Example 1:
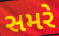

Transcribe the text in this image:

સમરે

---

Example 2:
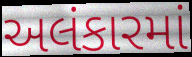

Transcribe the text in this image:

અલંકારમાં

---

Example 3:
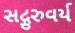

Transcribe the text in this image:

સદ્ગુરુવર્ય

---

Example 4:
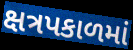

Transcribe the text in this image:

ક્ષત્રપકાળમાં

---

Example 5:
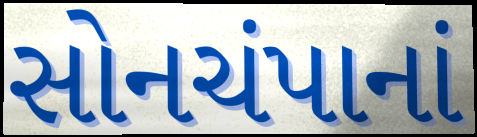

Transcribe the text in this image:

સોનચંપાનાં